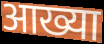
आख्या